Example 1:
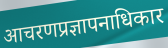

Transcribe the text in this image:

आचरणप्रज्ञापनाधिकार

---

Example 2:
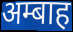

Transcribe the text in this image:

अम्बाह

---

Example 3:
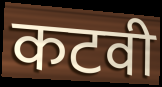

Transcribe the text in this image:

कटवी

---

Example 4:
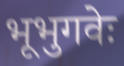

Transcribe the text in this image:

भूभुगवेः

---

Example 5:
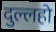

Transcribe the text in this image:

दुल्लहो